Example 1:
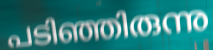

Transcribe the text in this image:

പടിഞ്ഞിരുന്നു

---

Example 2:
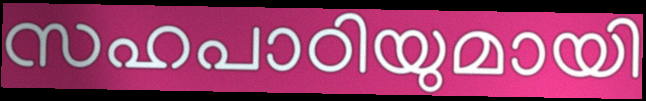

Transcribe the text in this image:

സഹപാഠിയുമായി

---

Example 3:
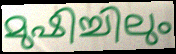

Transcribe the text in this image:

മുഷിച്ചിലും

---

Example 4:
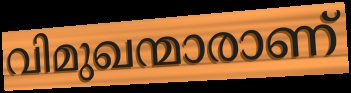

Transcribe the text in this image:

വിമുഖന്മാരാണ്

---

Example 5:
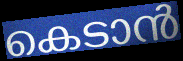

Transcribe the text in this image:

കെടാൻ